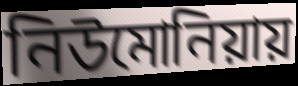
নিউমোনিয়ায়